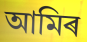
আমিৰ